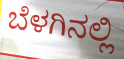
ಬೆಳಗಿನಲ್ಲಿ